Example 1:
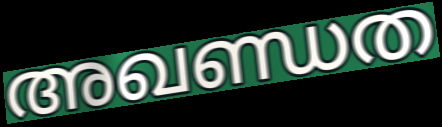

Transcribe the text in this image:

അഖണ്ഡത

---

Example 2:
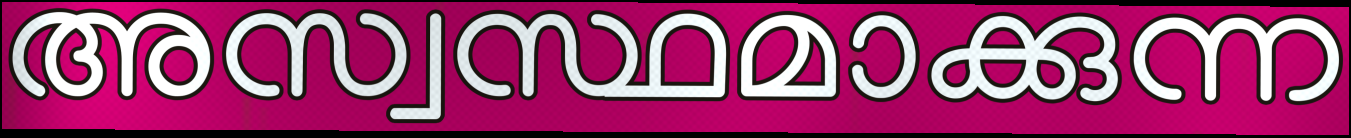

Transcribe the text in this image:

അസ്വസ്ഥമാക്കുന്ന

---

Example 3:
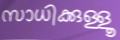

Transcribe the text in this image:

സാധിക്കുള്ളൂ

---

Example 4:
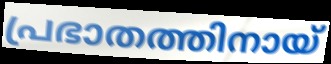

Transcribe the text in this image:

പ്രഭാതത്തിനായ്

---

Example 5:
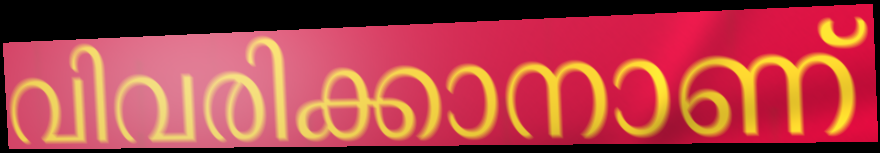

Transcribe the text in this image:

വിവരിക്കാനാണ്